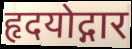
हृदयोद्गार